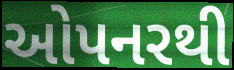
ઓપનરથી